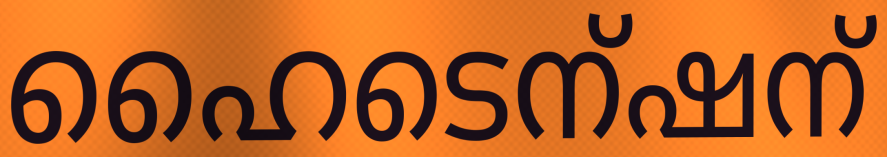
ഹൈടെന്ഷന്